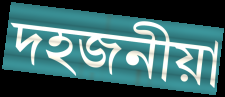
দহজনীয়া